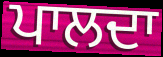
ਪਾਲਦਾ